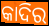
କାଦିର